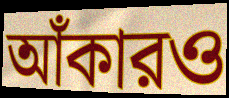
আঁকারও